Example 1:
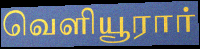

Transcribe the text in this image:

வெளியூரார்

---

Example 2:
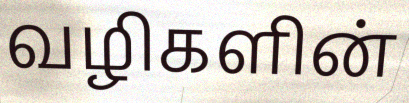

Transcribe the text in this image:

வழிகளின்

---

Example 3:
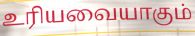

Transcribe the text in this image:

உரியவையாகும்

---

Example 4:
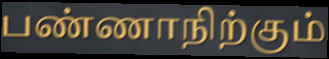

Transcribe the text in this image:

பண்ணாநிற்கும்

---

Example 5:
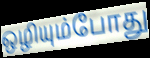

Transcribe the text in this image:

ஒழியும்போது